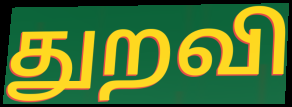
துறவி